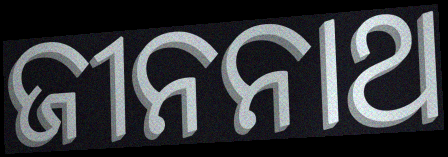
ଜୀନନାଥ